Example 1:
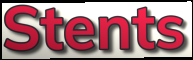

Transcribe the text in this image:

Stents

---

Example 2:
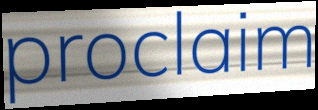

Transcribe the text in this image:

proclaim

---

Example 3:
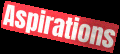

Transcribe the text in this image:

Aspirations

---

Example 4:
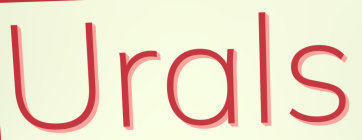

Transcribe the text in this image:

Urals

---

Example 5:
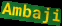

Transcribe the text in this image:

Ambaji